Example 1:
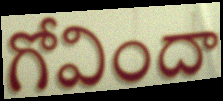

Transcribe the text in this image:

గోవిందా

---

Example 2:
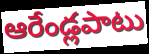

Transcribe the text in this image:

ఆరేండ్లపాటు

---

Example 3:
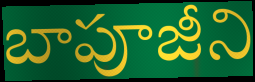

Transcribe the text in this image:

బాపూజీని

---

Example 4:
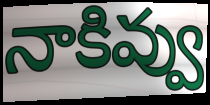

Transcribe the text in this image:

నాకివ్వు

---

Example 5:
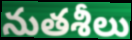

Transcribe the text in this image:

నుతశీలు